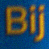
Bij